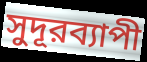
সুদূরব্যাপী